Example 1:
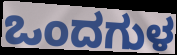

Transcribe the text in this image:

ಒಂದಗುಳ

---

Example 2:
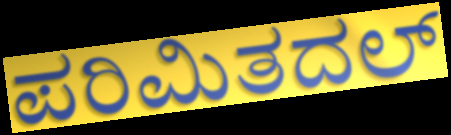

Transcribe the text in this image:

ಪರಿಮಿತದಲ್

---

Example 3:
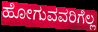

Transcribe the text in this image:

ಹೋಗುವವರಿಗೆಲ್ಲ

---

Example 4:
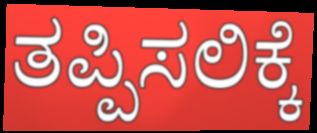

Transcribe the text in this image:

ತಪ್ಪಿಸಲಿಕ್ಕೆ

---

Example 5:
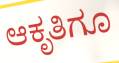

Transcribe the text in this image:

ಆಕೃತಿಗೂ